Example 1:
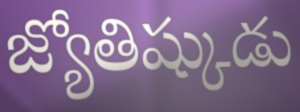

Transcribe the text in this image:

జ్యోతిష్కుడు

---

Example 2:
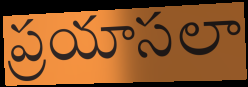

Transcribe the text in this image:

ప్రయాసలా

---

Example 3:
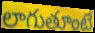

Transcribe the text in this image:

లాగుతూంటే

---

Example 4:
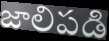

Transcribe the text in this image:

జాలిపడి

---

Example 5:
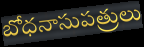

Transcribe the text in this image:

బోధనాసుపత్రులు